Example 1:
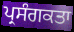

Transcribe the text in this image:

ਪ੍ਰਸੰਗਕਤਾ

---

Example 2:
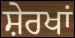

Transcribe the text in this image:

ਸ਼ੇਰਖਾਂ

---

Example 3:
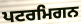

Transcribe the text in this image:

ਪਟਰਮਿਗਨ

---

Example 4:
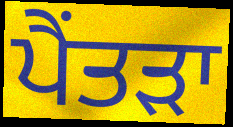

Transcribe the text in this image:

ਪੈਂਤੜਾ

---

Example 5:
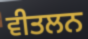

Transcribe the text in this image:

ਵੀਤਲਨ